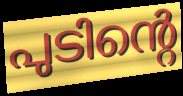
പുടിന്റെ